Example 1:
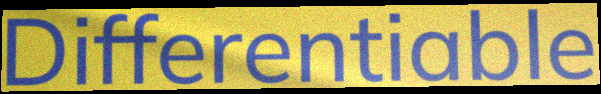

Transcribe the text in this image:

Differentiable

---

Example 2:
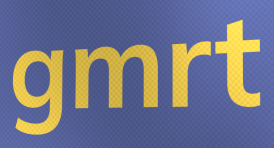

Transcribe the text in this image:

gmrt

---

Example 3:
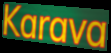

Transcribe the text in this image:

Karava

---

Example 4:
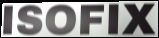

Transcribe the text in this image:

ISOFIX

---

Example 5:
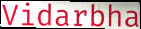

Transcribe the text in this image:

Vidarbha